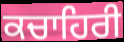
ਕਚਾਹਿਰੀ